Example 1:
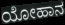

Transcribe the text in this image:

ಯೋಹಾನ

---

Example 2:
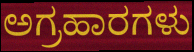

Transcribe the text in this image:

ಅಗ್ರಹಾರಗಳು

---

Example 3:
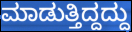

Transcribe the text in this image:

ಮಾಡುತ್ತಿದ್ದದ್ದು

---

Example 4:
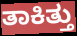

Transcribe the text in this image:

ತಾಕಿತ್ತು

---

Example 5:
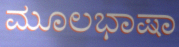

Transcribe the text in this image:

ಮೂಲಭಾಷಾ